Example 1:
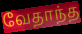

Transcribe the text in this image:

வேதாந்த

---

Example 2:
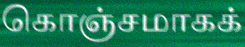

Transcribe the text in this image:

கொஞ்சமாகக்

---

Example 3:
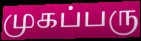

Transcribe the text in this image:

முகப்பரு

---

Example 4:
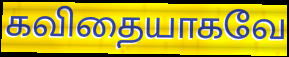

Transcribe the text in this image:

கவிதையாகவே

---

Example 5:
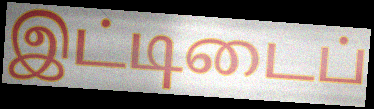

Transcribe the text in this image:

இட்டிடைப்